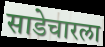
साडेचारला